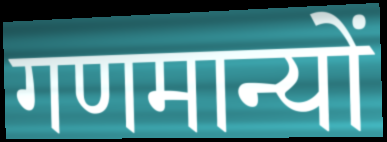
गणमान्यों